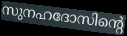
സുനഹദോസിന്റെ